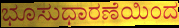
ಭೂಸುಧಾರಣೆಯಿಂದ